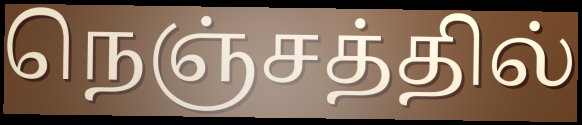
நெஞ்சத்தில்